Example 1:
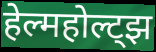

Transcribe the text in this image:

हेल्महोल्ट्झ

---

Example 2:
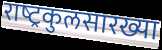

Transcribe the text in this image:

राष्ट्रकुलसारख्या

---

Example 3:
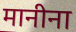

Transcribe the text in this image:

मानीना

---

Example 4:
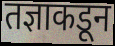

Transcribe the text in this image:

तज्ञाकडून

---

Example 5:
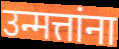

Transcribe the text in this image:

उन्मत्तांना